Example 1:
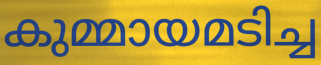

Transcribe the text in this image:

കുമ്മായമടിച്ച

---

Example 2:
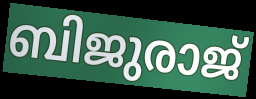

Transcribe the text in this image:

ബിജുരാജ്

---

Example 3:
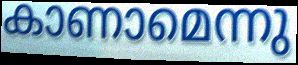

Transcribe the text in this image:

കാണാമെന്നു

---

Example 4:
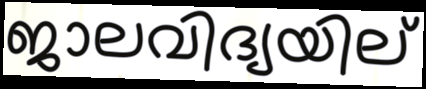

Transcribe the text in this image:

ജാലവിദ്യയില്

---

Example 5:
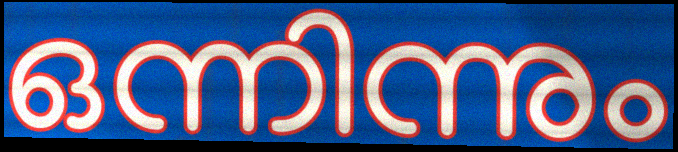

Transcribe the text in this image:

ഒന്നിന്നും